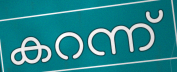
കറന്ന്